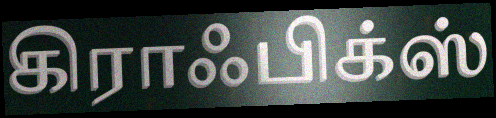
கிராஃபிக்ஸ்